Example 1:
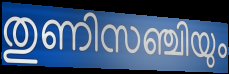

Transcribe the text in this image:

തുണിസഞ്ചിയും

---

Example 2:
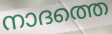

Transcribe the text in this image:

നാദത്തെ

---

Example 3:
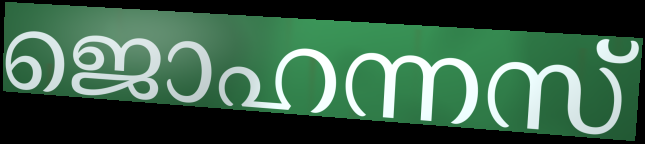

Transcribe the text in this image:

ജൊഹന്നസ്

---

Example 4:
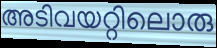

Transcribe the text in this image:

അടിവയറ്റിലൊരു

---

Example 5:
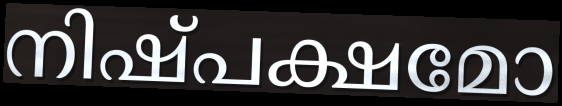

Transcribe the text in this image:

നിഷ്പക്ഷമോ